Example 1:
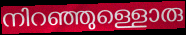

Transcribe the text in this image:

നിറഞ്ഞുള്ളൊരു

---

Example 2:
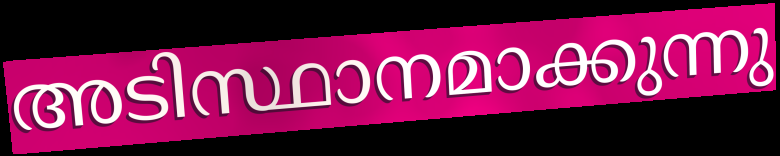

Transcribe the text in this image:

അടിസ്ഥാനമാക്കുന്നു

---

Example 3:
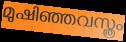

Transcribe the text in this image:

മുഷിഞ്ഞവസ്ത്രം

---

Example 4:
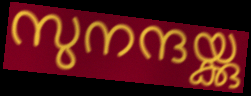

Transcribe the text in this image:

സുനന്ദയ്ക്കു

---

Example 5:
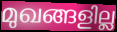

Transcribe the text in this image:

മുഖങ്ങളില്ല